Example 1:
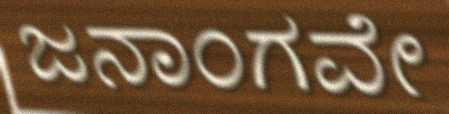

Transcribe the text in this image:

ಜನಾಂಗವೇ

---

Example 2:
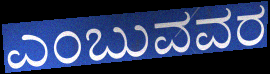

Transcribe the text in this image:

ಎಂಬುವವರ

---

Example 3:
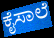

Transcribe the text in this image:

ಕೈಸಾಲೆ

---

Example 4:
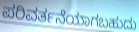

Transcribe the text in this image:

ಪರಿವರ್ತನೆಯಾಗಬಹುದು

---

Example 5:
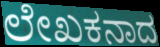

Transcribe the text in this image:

ಲೇಖಕನಾದ